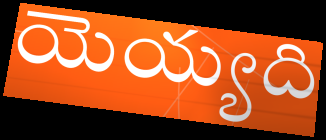
యెయ్యది